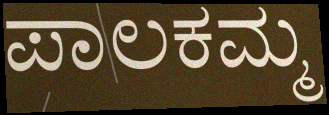
ಪಾಲಕಮ್ಮ